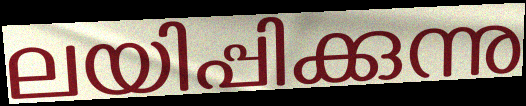
ലയിപ്പിക്കുന്നു